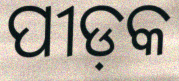
ପୀଡ଼କ